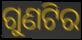
ଗୁଣଟିର